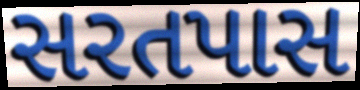
સરતપાસ